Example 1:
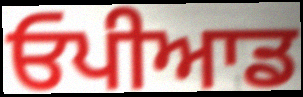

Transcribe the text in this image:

ਓਪੀਆਡ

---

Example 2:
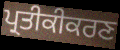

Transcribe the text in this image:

ਪ੍ਰਤੀਕੀਕਰਣ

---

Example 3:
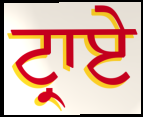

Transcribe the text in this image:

ਟ੍ਰਾਏ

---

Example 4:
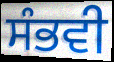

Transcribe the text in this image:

ਸੰਭਵੀ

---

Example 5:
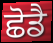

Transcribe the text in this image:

ਛੋਡੈ